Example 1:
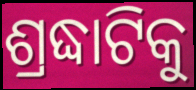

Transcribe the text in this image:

ଶ୍ରଦ୍ଧାଟିକୁ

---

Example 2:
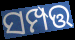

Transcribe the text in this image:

ସମ୍ପତ୍ତ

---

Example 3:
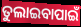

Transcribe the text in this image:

ତୁଲାଇବାପାଇଁ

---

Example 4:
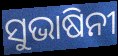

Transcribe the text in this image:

ସୁଭାଷିନୀ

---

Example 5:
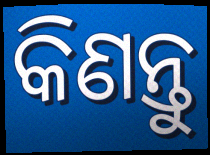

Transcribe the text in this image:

କିଣନ୍ତୁ